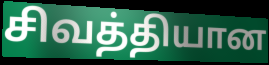
சிவத்தியான